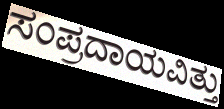
ಸಂಪ್ರದಾಯವಿತ್ತು